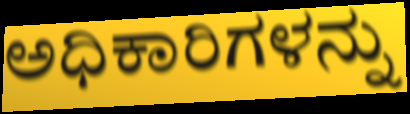
ಅಧಿಕಾರಿಗಳನ್ನು